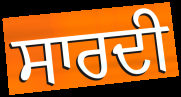
ਸਾਰਦੀ